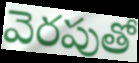
వెరపుతో